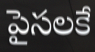
పైసలకే